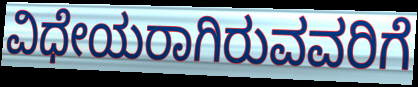
ವಿಧೇಯರಾಗಿರುವವರಿಗೆ